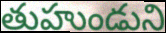
తుహుండుని